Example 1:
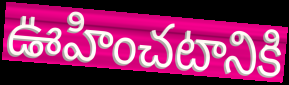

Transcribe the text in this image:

ఊహించటానికి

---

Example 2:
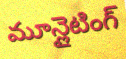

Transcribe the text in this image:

మూన్లైటింగ్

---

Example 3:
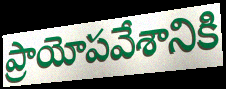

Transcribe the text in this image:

ప్రాయోపవేశానికి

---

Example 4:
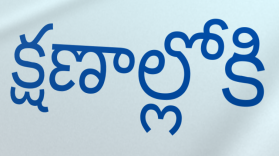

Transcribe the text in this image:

క్షణాల్లోకి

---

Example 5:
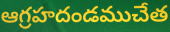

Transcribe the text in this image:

ఆగ్రహదండముచేత